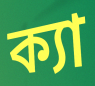
ক্যা